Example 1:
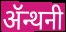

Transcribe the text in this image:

ॲन्थनी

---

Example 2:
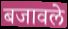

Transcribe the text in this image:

बजावले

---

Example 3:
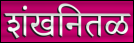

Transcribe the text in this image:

शंखनितळ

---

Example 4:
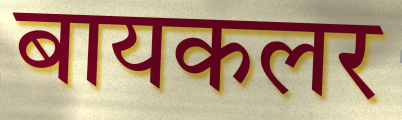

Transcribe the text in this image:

बायकलर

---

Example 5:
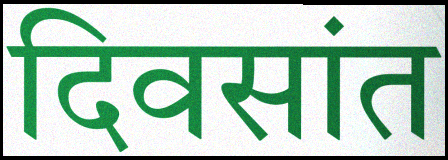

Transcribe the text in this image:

दिवसांत